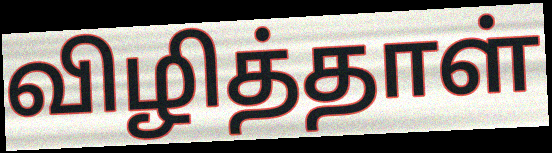
விழித்தாள்